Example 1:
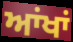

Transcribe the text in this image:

ਆਂਖਾਂ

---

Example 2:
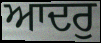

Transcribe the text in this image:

ਆਦਰੁ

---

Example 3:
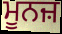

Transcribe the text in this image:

ਮੂਨਜ਼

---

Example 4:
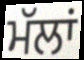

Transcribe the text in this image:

ਮੱਲਾਂ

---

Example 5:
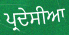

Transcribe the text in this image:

ਪ੍ਰਦੇਸੀਆ